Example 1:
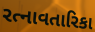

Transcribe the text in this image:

રત્નાવતારિકા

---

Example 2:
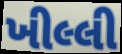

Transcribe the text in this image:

ખીલ્લી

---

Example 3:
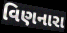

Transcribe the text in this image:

વિણનારા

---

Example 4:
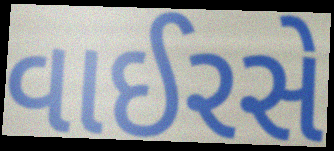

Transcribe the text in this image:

વાઈરસે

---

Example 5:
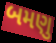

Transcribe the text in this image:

બમણુ